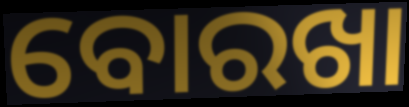
ବୋରଖା